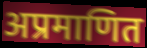
अप्रमाणित